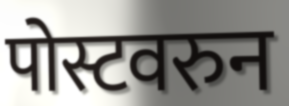
पोस्टवरुन